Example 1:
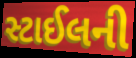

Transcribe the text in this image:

સ્ટાઈલની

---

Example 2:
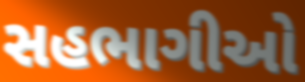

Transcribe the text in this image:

સહભાગીઓ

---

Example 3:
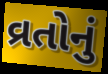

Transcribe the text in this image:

વ્રતોનું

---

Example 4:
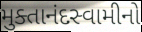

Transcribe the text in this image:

મુક્તાનંદસ્વામીનો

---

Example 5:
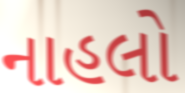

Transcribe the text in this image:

નાહલો